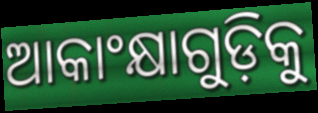
ଆକାଂକ୍ଷାଗୁଡ଼ିକୁ